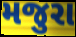
મજુરા